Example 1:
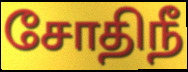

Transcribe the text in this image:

சோதிநீ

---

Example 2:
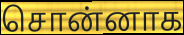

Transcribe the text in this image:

சொன்னாக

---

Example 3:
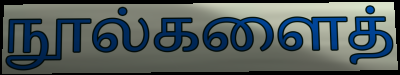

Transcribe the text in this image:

நூல்களைத்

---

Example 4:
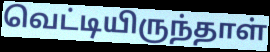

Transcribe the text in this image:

வெட்டியிருந்தாள்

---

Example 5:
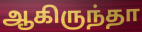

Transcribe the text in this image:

ஆகிருந்தா